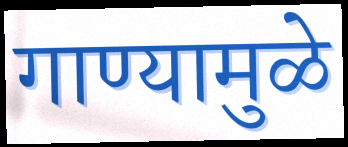
गाण्यामुळे